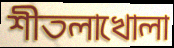
শীতলাখোলা